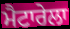
ਮੈਟਾਰੇਲਾ